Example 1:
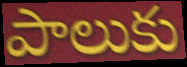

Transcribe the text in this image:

పాలుకు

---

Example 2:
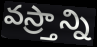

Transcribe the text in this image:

వస్ర్తాన్ని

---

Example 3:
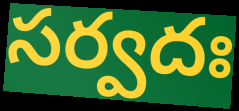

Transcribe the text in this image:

సర్వదః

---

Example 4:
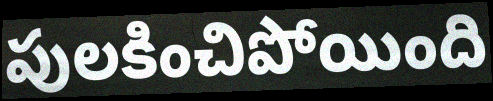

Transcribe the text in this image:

పులకించిపోయింది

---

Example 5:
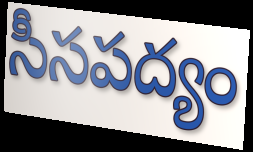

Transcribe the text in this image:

సీసపద్యం